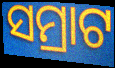
ସମ୍ରାଟ